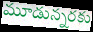
మూడున్నరకు